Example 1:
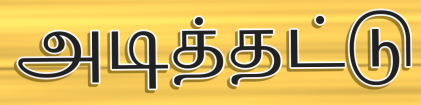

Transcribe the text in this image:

அடித்தட்டு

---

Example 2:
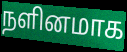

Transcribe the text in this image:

நளினமாக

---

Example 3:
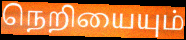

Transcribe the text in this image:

நெறியையும்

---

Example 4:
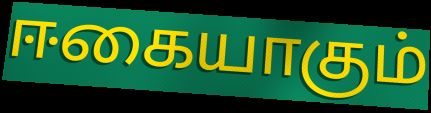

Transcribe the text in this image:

ஈகையாகும்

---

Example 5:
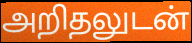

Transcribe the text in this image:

அறிதலுடன்